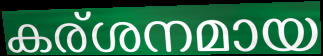
കര്ശനമായ